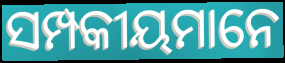
ସମ୍ପକୀୟମାନେ